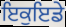
ਇਕੁਇਡੇ